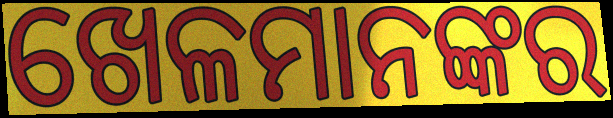
ଖେଳମାନଙ୍କର